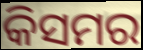
କିସମର